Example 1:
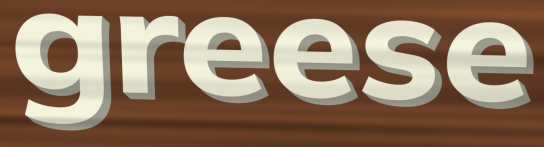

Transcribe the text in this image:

greese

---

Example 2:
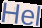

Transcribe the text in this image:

Hel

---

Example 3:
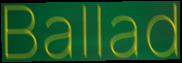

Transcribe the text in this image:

Ballad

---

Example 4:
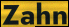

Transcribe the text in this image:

Zahn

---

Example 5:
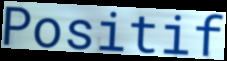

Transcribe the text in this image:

Positif